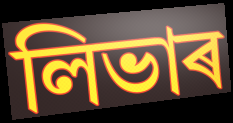
লিভাৰ